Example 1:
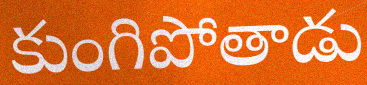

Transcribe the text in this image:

కుంగిపోతాడు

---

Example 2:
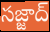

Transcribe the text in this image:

సజ్జాద్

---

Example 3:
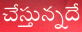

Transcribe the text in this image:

చేస్తున్నదే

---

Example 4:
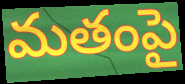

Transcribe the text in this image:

మతంపై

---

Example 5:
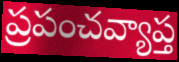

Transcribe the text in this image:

ప్రపంచవ్యాప్త